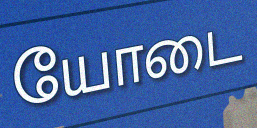
யோடை